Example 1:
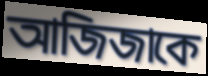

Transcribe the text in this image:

আজিজাকে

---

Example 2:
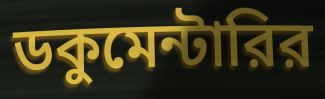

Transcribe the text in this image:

ডকুমেন্টারির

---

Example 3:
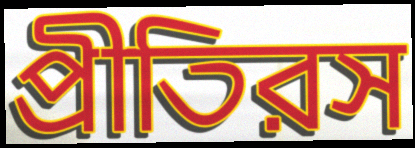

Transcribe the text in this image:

প্রীতিরস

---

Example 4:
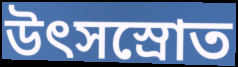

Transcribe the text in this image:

উৎসস্রোত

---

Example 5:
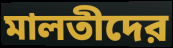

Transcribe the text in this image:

মালতীদের